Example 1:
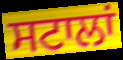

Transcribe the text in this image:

ਸਟਾਲਾਂ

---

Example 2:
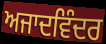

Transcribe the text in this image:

ਅਜਾਦਵਿੰਦਰ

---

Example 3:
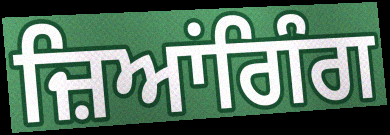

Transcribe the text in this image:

ਜ਼ਿਆਂਗਿੰਗ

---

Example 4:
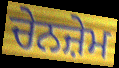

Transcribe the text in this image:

ਚੇਨਜ਼ੇਮ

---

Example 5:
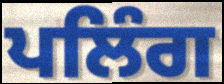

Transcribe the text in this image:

ਪਲਿੰਗ